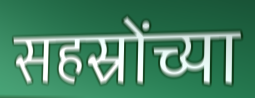
सहस्रोंच्या